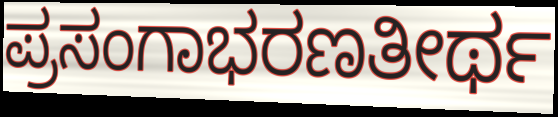
ಪ್ರಸಂಗಾಭರಣತೀರ್ಥ